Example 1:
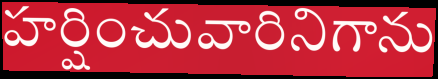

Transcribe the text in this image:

హర్షించువారినిగాను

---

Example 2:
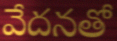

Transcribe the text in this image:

వేదనతో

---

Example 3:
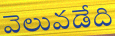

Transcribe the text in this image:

వెలువడేది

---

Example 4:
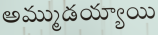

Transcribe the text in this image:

అమ్ముడయ్యాయి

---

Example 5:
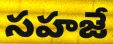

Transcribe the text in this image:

సహజే